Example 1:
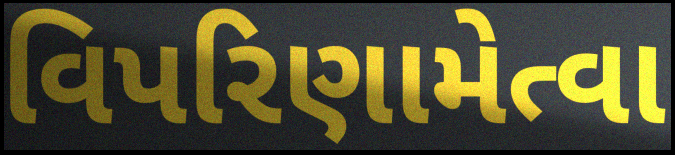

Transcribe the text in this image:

વિપરિણામેત્વા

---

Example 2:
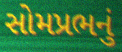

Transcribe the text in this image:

સોમપ્રભનું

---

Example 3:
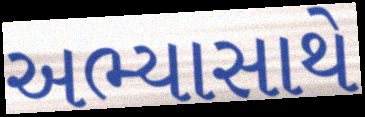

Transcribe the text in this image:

અભ્યાસાથે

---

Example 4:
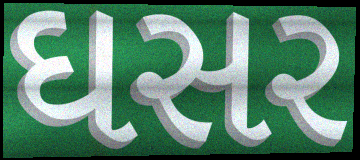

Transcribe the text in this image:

ઘસર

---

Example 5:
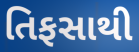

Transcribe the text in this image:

તિફસાથી